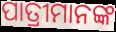
ପାତ୍ରୀମାନଙ୍କ